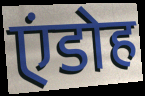
एंडोह